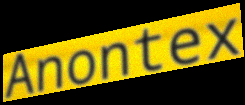
Anontex